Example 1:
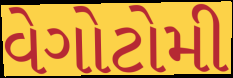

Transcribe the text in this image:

વેગોટોમી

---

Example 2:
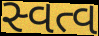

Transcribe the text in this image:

સ્વત્વ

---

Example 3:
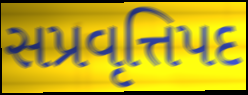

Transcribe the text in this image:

સપ્રવૃત્તિપદ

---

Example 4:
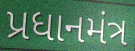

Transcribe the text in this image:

પ્રધાનમંત્ર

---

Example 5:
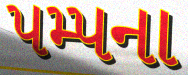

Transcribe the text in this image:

પમ્પના